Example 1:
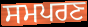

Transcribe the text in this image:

ਸਮਪਰਣ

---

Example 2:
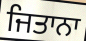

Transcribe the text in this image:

ਜਿਤਾਨਾ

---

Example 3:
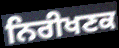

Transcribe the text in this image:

ਨਿਰੀਖਣਕ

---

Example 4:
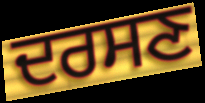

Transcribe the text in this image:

ਦਰਸਣ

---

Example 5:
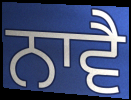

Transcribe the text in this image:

ਨਾਵੈ